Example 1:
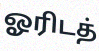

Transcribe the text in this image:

ஓரிடத்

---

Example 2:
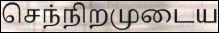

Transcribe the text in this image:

செந்நிறமுடைய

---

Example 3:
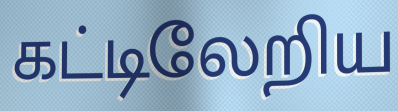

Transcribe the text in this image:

கட்டிலேறிய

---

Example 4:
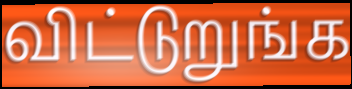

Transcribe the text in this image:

விட்டுறுங்க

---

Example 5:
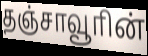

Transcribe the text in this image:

தஞ்சாவூரின்